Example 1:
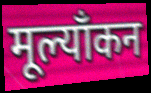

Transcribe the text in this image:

मूल्याँकन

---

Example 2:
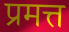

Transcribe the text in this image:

प्रमत्त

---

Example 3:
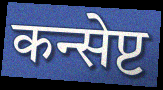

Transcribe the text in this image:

कन्सेप्ट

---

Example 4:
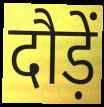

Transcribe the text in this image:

दौड़ें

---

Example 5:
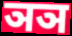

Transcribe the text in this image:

ञञ